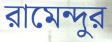
রামেন্দুর